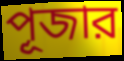
পূজার